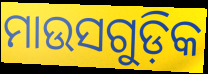
ମାଉସଗୁଡ଼ିକ